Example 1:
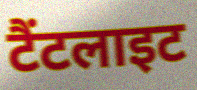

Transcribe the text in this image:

टैंटलाइट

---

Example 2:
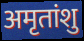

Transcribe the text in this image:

अमृतांशु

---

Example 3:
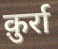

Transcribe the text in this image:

क़ुर्रा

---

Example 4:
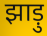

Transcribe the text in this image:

झाड़ु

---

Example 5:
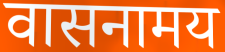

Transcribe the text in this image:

वासनामय